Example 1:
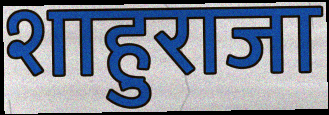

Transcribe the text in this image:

शाहुराजा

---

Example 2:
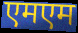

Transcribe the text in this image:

एमएम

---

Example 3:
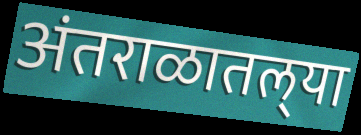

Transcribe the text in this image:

अंतराळातल्या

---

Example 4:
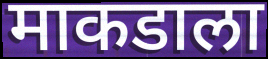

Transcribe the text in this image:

माकडाला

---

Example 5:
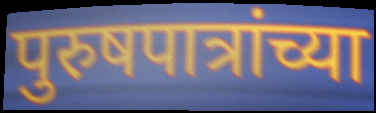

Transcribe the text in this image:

पुरुषपात्रांच्या